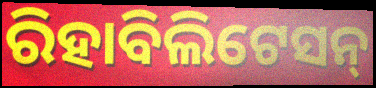
ରିହାବିଲିଟେସନ୍